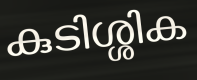
കുടിശ്ശിക